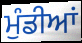
ਮੁੰਡੀਆਂ